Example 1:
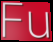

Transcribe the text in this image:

Fu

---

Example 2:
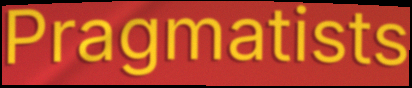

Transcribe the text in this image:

Pragmatists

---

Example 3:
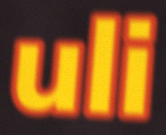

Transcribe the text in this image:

uli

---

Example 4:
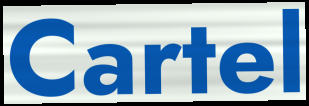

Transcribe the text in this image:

Cartel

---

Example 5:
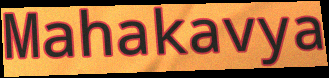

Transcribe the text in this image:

Mahakavya